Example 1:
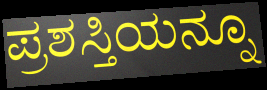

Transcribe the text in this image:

ಪ್ರಶಸ್ತಿಯನ್ನೂ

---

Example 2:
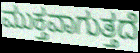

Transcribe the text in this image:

ಮುಕ್ತವಾಗುತ್ತದೆ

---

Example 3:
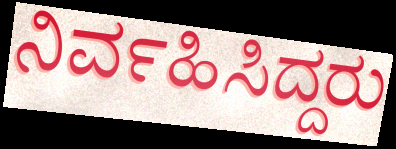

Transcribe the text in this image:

ನಿರ್ವಹಿಸಿದ್ದರು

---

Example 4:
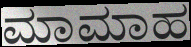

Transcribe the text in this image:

ಮಾಮಾಹ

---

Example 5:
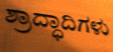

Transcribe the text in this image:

ಶ್ರಾದ್ಧಾದಿಗಳು